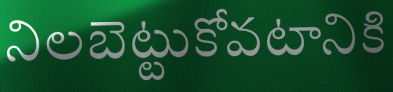
నిలబెట్టుకోవటానికి